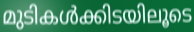
മുടികൾക്കിടയിലൂടെ